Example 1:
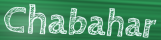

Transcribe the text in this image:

Chabahar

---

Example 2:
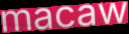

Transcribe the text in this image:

macaw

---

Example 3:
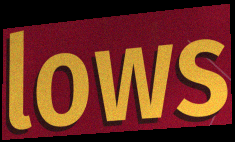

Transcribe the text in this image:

lows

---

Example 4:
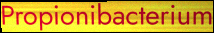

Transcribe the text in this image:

Propionibacterium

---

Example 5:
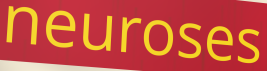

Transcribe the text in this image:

neuroses